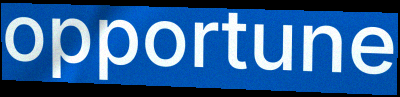
opportune